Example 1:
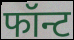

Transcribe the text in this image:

फॉन्ट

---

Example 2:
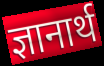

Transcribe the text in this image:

ज्ञानार्थ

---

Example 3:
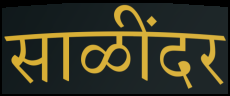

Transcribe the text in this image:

साळींदर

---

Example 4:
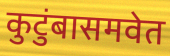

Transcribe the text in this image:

कुटुंबासमवेत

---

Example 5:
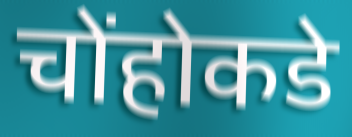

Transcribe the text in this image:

चोंहोकडे